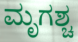
ಮೃಗಶ್ಚ